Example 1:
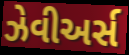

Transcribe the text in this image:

ઝેવીઅર્સ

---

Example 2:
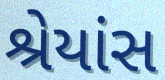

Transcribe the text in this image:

શ્રેયાંસ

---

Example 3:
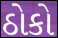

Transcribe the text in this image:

ઠોકો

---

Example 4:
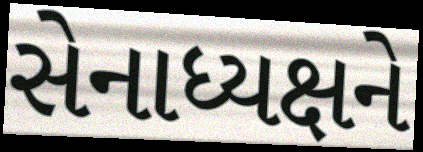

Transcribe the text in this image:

સેનાધ્યક્ષને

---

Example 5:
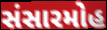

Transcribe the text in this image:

સંસારમોહ